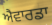
ਐਵਾਰਡਾ